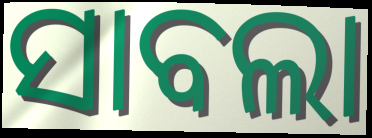
ସାବଲା